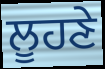
ਲੂਹਣੇ